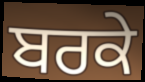
ਬਰਕੇ